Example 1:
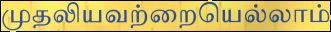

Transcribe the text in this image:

முதலியவற்றையெல்லாம்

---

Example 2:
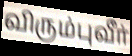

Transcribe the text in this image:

விரும்புவீர்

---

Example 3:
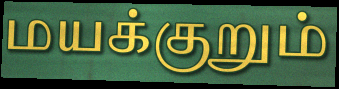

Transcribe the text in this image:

மயக்குறும்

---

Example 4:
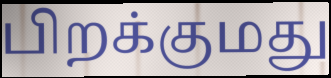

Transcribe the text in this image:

பிறக்குமது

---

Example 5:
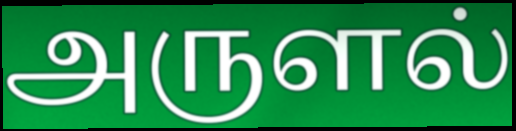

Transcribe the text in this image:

அருளல்